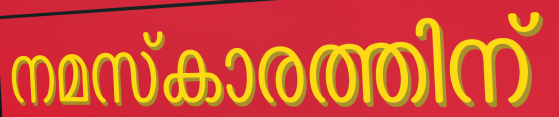
നമസ്‌കാരത്തിന്